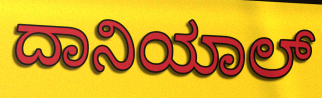
ದಾನಿಯಾಲ್